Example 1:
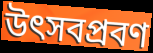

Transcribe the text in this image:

উৎসবপ্রবণ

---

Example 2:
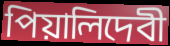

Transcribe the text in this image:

পিয়ালিদেবী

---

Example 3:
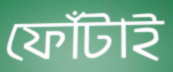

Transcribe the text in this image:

ফোঁটাই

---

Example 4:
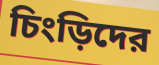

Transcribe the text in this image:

চিংড়িদের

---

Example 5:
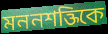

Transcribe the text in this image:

মননশক্তিকে